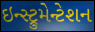
ઇન્સ્ટ્રુમેન્ટેશન